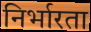
निर्भारता